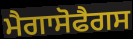
ਮੈਗਾਸੋਫੈਗਸ